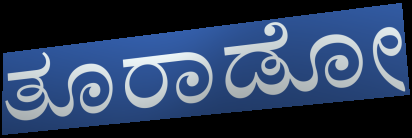
ತೂರಾಡೋ